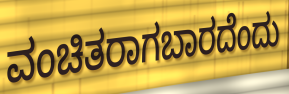
ವಂಚಿತರಾಗಬಾರದೆಂದು